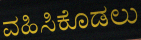
ವಹಿಸಿಕೊಡಲು